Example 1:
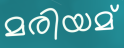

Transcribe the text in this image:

മരിയമ്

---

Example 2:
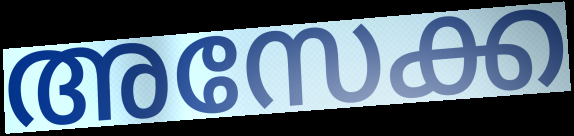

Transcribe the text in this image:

അസേക്ക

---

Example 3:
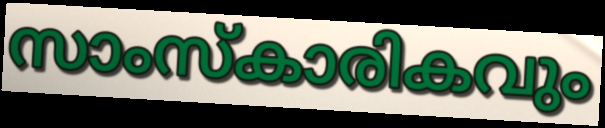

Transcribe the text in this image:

സാംസ്കാരികവും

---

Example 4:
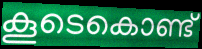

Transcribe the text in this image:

കൂടെകൊണ്ട്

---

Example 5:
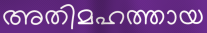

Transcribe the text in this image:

അതിമഹത്തായ